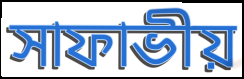
সাফাভীয়